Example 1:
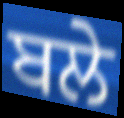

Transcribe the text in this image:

ਬਲੇ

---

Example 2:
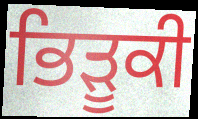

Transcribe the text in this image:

ਭਿੜੂਕੀ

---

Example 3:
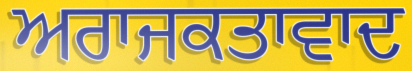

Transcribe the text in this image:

ਅਰਾਜਕਤਾਵਾਦ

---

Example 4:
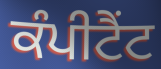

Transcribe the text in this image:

ਕੰਪੀਟੈਂਟ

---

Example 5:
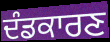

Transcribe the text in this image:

ਦੰਡਕਾਰਣ